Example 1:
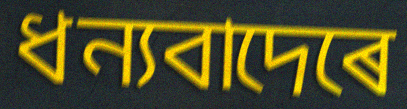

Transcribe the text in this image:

ধন্যবাদেৰে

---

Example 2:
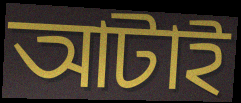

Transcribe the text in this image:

আটাই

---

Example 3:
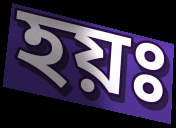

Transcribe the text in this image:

হয়ঃ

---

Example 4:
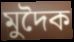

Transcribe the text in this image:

মুদৈক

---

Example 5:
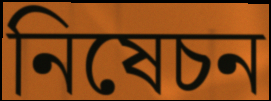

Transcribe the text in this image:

নিষেচন